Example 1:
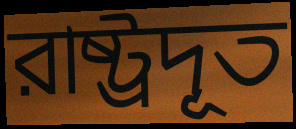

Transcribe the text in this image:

রাষ্ট্রদূত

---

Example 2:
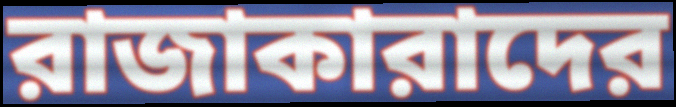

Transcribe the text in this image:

রাজাকারাদের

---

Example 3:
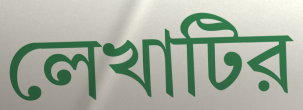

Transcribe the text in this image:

লেখাটির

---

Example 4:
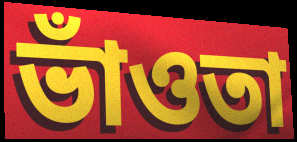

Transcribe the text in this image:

ভাঁওতা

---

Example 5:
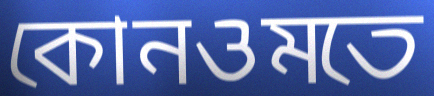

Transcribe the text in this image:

কোনওমতে